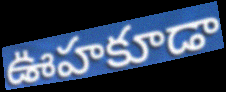
ఊహకూడా